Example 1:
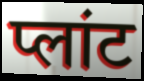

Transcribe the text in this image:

प्‍लांट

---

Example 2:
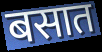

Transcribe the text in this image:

बसात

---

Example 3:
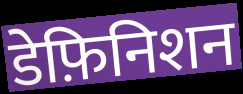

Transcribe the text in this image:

डेफ़िनिशन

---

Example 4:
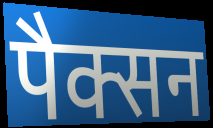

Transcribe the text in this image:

पैक्सन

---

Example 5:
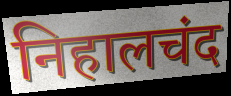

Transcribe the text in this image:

निहालचंद